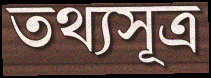
তথ্যসূত্ৰ